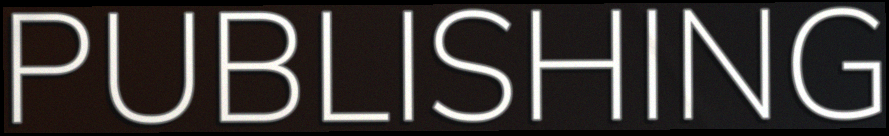
PUBLISHING